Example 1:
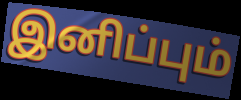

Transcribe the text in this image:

இனிப்பும்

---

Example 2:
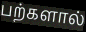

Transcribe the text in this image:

பற்களால்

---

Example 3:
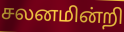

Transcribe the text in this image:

சலனமின்றி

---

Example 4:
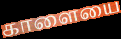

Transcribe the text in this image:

காளையை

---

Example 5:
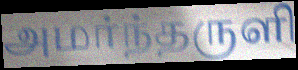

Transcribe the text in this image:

அமர்ந்தருளி